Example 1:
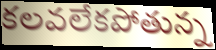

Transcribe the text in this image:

కలవలేకపోతున్న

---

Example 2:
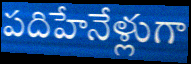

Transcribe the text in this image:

పదిహేనేళ్లుగా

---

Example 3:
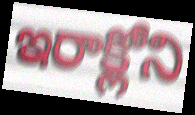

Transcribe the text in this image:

ఇరాక్లోని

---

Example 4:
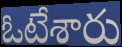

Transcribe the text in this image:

ఓటేశారు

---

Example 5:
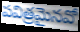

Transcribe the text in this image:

పవిత్రమైనవో